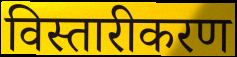
विस्तारीकरण